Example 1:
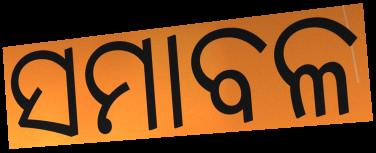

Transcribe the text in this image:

ସମାବଳ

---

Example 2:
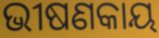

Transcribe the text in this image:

ଭୀଷଣକାୟ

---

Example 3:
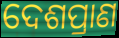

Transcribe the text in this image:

ଦେଶପ୍ରାଣ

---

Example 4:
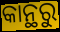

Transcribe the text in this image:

କାନ୍ଥରୁ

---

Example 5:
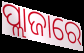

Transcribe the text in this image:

ପ୍ଲାଜାରେ